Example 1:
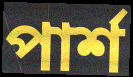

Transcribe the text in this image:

পার্শ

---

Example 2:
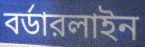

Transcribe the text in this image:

বর্ডারলাইন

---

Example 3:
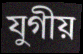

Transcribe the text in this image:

যুগীয়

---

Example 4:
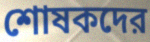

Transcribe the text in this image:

শোষকদের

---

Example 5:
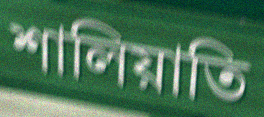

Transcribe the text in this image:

শালিয়াতি